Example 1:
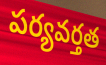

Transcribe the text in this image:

పర్యవర్తత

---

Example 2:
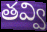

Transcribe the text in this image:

తవ్వి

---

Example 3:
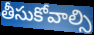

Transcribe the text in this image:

తీసుకోవాల్సి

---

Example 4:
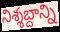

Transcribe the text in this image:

నిశ్శబ్దాన్ని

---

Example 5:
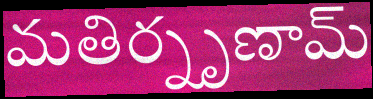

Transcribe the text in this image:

మతిర్నృణామ్